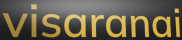
visaranai